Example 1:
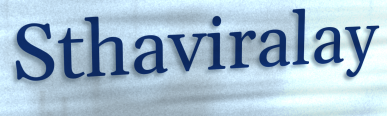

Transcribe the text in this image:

Sthaviralay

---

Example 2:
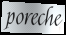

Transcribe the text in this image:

poreche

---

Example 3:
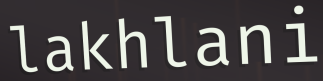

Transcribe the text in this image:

lakhlani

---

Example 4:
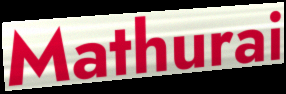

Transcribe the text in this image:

Mathurai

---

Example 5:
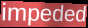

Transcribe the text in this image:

impeded